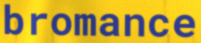
bromance